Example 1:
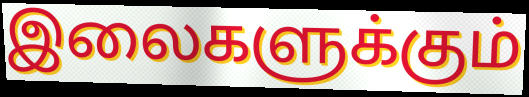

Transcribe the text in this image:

இலைகளுக்கும்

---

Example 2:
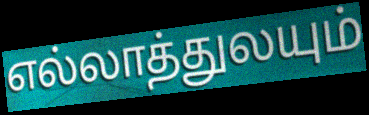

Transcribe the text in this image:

எல்லாத்துலயும்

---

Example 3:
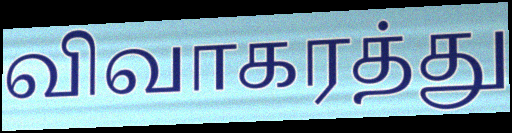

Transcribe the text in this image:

விவாகரத்து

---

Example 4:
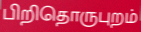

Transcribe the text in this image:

பிறிதொருபுறம்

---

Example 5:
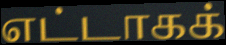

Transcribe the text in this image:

எட்டாகக்